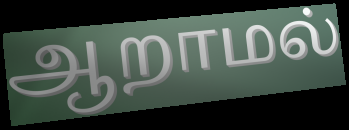
ஆறாமல்